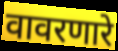
वावरणारे